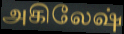
அகிலேஷ்